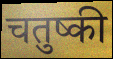
चतुष्की